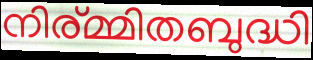
നിര്മ്മിതബുദ്ധി